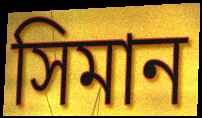
সিমান